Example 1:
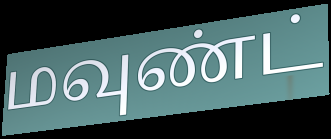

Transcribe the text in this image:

மவுண்ட்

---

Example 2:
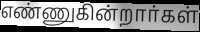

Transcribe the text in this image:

எண்ணுகின்றார்கள்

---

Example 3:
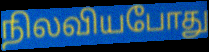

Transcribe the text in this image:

நிலவியபோது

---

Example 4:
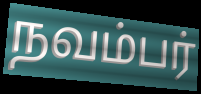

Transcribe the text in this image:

நவம்பர்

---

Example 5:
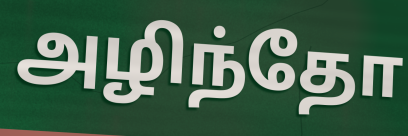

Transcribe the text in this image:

அழிந்தோ